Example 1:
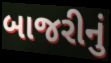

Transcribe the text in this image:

બાજરીનું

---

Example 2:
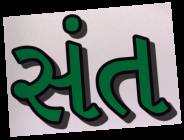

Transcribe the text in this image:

સંત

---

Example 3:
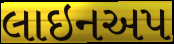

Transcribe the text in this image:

લાઇનઅપ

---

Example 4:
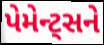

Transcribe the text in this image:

પેમેન્ટ્સને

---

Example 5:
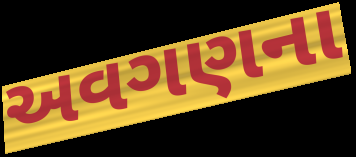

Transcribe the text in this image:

અવગણના